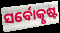
ସର୍ବୋତ୍କୃଷ୍ଟ